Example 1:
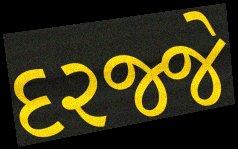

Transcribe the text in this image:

દરજ્જે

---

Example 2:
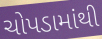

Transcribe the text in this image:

ચોપડામાંથી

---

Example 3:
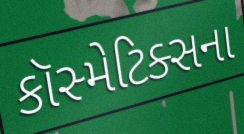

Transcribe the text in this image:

કૉસ્મેટિક્સના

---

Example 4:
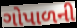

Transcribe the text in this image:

ગોપાળની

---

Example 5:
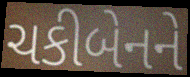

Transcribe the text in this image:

ચકીબેનને